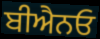
ਬੀਐਨਓ